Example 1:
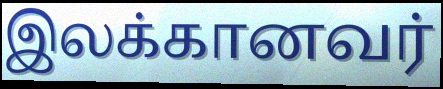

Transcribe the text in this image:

இலக்கானவர்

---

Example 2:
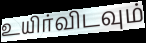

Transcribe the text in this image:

உயிர்விடவும்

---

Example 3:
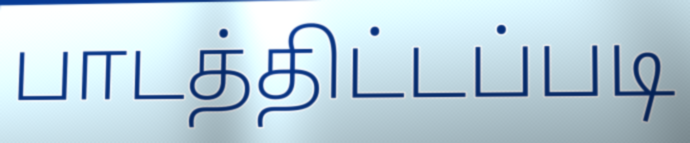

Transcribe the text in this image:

பாடத்திட்டப்படி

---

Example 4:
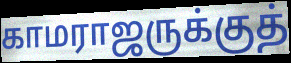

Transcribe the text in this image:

காமராஜருக்குத்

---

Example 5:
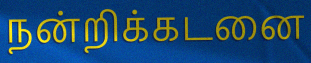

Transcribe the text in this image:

நன்றிக்கடனை